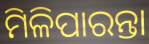
ମିଳିପାରନ୍ତା